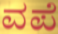
ವಪೆ